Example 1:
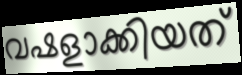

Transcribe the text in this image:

വഷളാക്കിയത്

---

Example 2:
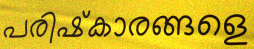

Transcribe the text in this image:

പരിഷ്‌കാരങ്ങളെ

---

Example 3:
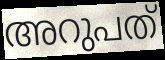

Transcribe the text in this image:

അറുപത്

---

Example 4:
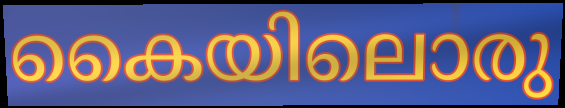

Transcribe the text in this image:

കൈയിലൊരു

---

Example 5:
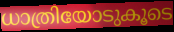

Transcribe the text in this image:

ധാത്രിയോടുകൂടെ